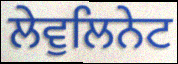
ਲੇਵੁਲਿਨੇਟ